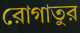
রোগাতুর